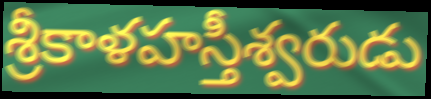
శ్రీకాళహస్తీశ్వరుడు